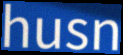
husn